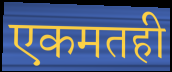
एकमतही